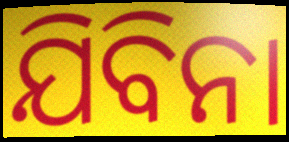
ଯିବିନା